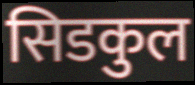
सिडकुल